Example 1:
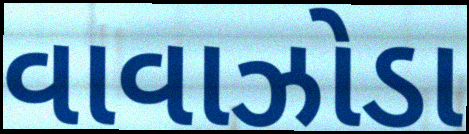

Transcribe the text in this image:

વાવાઝોડા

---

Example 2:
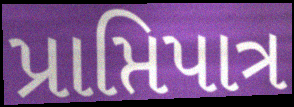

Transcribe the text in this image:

પ્રાપ્તિપાત્ર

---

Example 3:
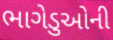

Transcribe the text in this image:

ભાગેડુઓની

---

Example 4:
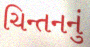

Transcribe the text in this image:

ચિન્તનનું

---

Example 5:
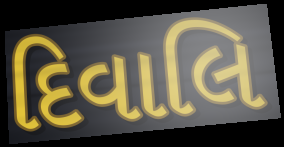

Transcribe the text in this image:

દિવાલિ